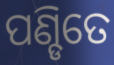
ପଣ୍ଡିତେ